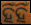
ହିଁହିଁ